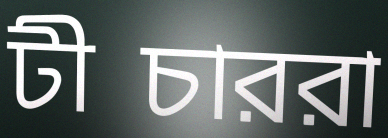
টীচাররা